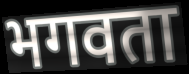
भगवता